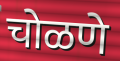
चोळणे